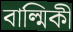
বাল্মিকী